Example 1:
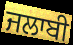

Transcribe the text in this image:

ਜਲਾਬੀ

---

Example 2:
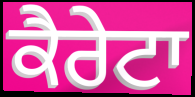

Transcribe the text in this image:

ਕੈਰੇਟਾ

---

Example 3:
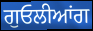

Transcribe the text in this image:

ਗੁਓਲੀਆਂਗ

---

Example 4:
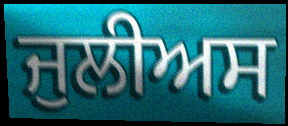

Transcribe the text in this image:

ਜੁਲੀਅਸ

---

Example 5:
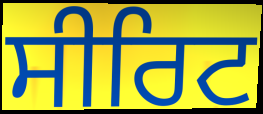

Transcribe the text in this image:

ਸੀਰਿਟ